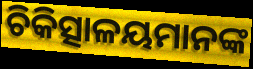
ଚିକିତ୍ସାଳୟମାନଙ୍କ